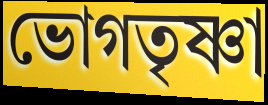
ভোগতৃষ্ণা